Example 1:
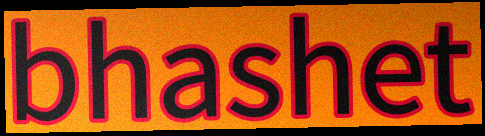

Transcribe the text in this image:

bhashet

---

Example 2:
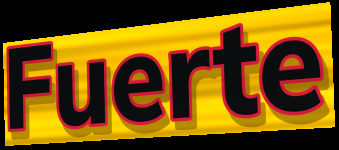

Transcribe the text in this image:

Fuerte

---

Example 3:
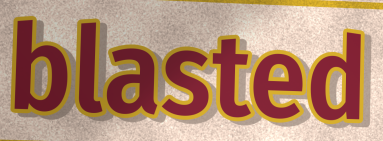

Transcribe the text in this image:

blasted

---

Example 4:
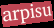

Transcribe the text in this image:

arpisu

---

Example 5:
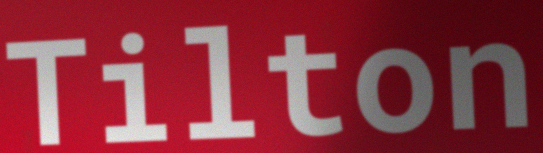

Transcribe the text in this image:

Tilton